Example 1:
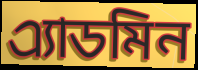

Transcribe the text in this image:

এ্যাডমিন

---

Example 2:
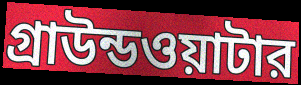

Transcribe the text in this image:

গ্রাউন্ডওয়াটার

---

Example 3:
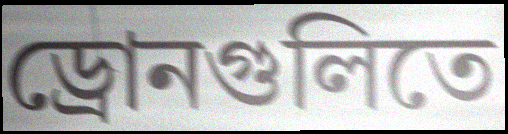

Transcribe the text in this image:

ড্রোনগুলিতে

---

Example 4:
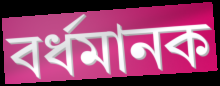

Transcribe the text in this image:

বর্ধমানক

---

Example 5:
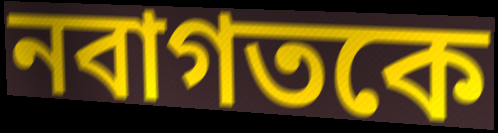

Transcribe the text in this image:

নবাগতকে